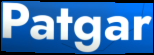
Patgar